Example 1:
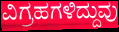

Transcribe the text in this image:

ವಿಗ್ರಹಗಳಿದ್ದುವು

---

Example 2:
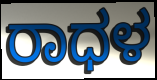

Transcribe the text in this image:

ರಾಧಳ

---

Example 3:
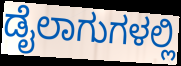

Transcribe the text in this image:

ಡೈಲಾಗುಗಳಲ್ಲಿ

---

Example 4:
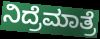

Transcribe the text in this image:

ನಿದ್ರೆಮಾತ್ರೆ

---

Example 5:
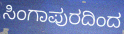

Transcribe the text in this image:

ಸಿಂಗಾಪುರದಿಂದ